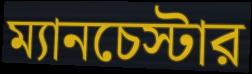
ম্যানচেস্টার